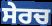
ਸੇਰਚ